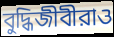
বুদ্ধিজীবীরাও